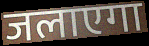
जलाएगा